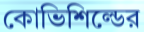
কোভিশিল্ডের